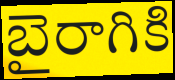
బైరాగికి